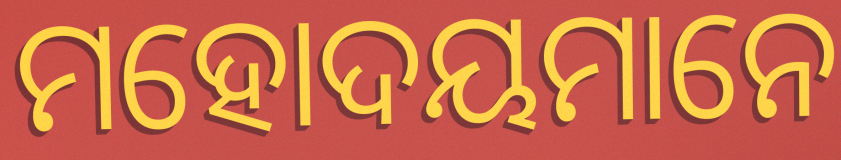
ମହୋଦୟମାନେ